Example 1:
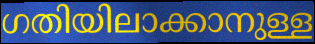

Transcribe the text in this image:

ഗതിയിലാക്കാനുള്ള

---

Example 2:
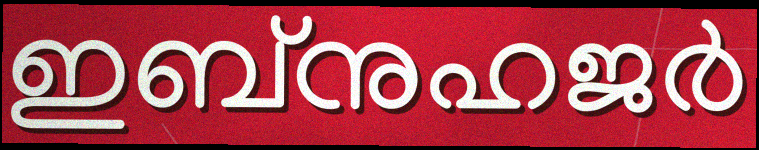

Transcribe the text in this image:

ഇബ്നുഹജർ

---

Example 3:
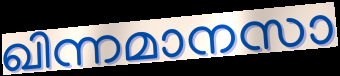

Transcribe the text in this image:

ഖിന്നമാനസാ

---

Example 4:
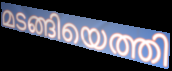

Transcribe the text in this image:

മടങ്ങിയെത്തി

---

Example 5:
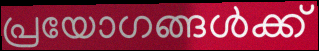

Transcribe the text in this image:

പ്രയോഗങ്ങൾക്ക്